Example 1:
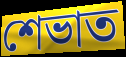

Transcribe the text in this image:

শেভাত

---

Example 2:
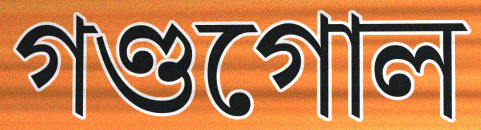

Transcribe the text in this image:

গণ্ডগোল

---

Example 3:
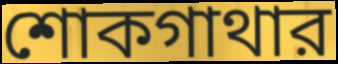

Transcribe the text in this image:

শোকগাথার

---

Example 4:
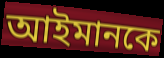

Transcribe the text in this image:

আইমানকে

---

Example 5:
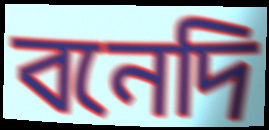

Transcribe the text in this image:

বনেদি